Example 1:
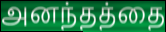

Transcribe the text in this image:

அனந்தத்தை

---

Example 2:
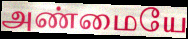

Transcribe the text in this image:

அண்மையே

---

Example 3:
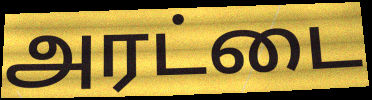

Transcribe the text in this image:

அரட்டை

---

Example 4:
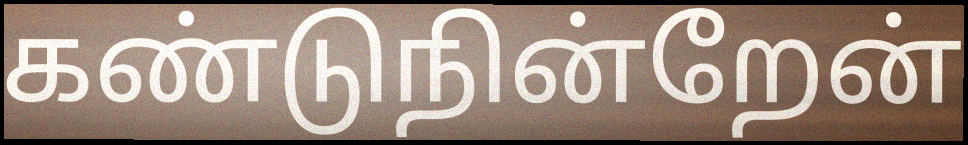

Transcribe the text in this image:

கண்டுநின்றேன்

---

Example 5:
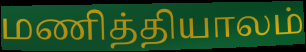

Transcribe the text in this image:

மணித்தியாலம்